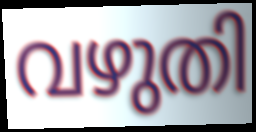
വഴുതി